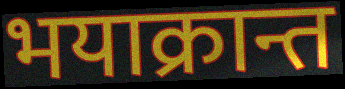
भयाक्रान्त